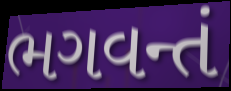
ભગવન્તં